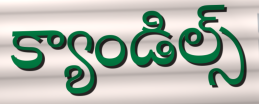
క్యాండిల్స్